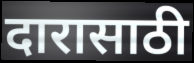
दारासाठी